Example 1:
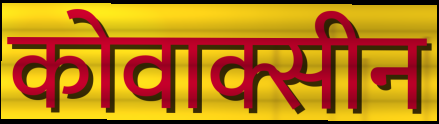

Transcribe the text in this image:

कोवाक्सीन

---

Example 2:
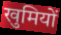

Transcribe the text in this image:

खुमियों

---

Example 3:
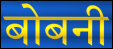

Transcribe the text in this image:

बोबनी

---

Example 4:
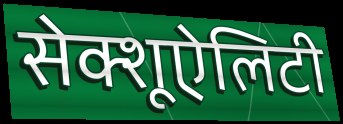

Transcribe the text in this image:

सेक्शूऐलिटी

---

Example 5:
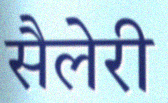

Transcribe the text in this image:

सैलेरी